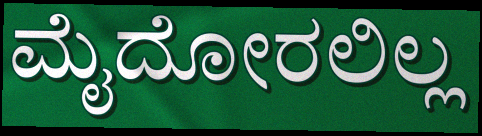
ಮೈದೋರಲಿಲ್ಲ